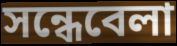
সন্ধেবেলা